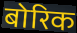
बोरिक